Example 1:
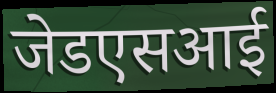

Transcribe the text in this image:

जेडएसआई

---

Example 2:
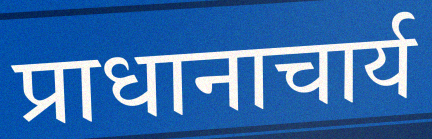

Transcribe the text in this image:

प्राधानाचार्य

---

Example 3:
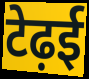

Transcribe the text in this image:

टेढ़ई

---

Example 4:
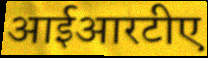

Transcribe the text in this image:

आईआरटीए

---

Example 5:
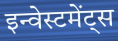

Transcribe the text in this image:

इन्वेस्टमेंट्स